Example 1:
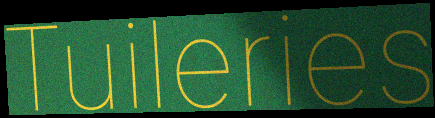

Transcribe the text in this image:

Tuileries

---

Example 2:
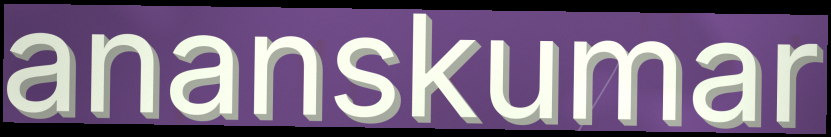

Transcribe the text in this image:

ananskumar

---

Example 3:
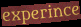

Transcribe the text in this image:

experince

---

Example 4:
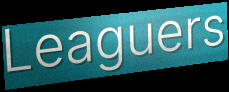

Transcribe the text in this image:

Leaguers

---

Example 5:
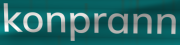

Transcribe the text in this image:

konprann